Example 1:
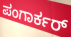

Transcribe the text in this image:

ಪಂಗಾರ್ಕರ್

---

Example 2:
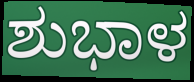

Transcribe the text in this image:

ಶುಭಾಳ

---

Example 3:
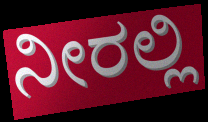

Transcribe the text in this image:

ನೀರಲ್ಲಿ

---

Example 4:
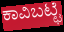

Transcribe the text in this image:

ಕಾವಿಬಟ್ಟೆ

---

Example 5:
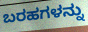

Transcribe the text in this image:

ಬರಹಗಳನ್ನು